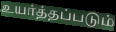
உயர்த்தப்படும்